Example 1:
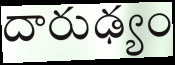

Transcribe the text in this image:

దారుఢ్యం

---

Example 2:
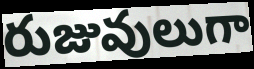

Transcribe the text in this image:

రుజువులుగా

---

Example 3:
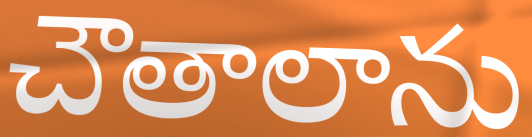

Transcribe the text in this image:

చౌతాలాను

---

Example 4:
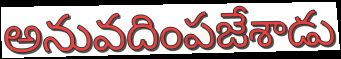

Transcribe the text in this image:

అనువదింపజేశాడు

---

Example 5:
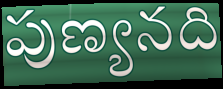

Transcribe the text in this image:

పుణ్యనది